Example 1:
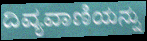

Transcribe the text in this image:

ದಿವ್ಯವಾಣಿಯನ್ನು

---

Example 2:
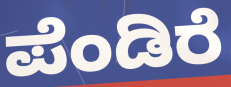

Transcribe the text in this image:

ಪೆಂಡಿರೆ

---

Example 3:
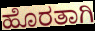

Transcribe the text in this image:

ಹೊರತಾಗಿ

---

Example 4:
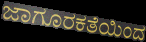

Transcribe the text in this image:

ಜಾಗೂರಕತೆಯಿಂದ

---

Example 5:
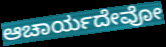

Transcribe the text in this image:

ಆಚಾರ್ಯದೇವೋ